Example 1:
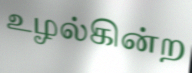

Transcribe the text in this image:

உழல்கின்ற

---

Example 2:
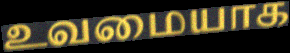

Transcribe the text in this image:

உவமையாக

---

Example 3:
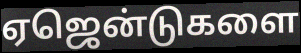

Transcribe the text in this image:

ஏஜென்டுகளை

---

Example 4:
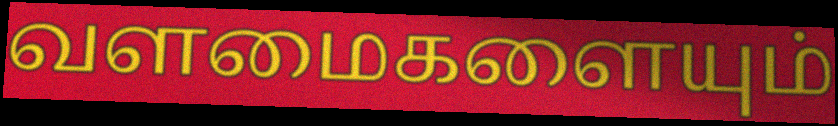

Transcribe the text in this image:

வளமைகளையும்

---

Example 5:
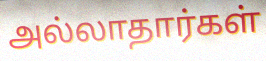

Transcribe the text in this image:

அல்லாதார்கள்